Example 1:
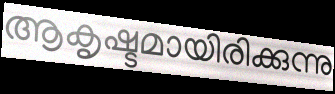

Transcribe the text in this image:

ആകൃഷ്ടമായിരിക്കുന്നു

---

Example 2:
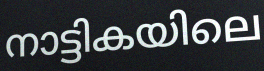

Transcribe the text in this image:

നാട്ടികയിലെ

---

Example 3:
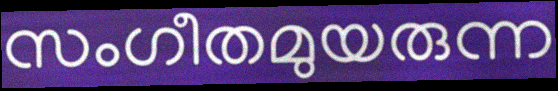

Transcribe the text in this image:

സംഗീതമുയരുന്ന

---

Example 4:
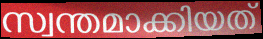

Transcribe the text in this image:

സ്വന്തമാക്കിയത്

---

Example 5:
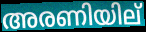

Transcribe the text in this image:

അരണിയില്